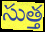
సుత్త